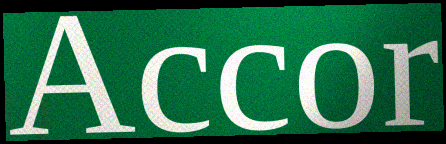
Accor